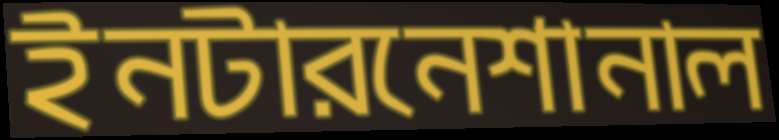
ইনটারনেশানাল